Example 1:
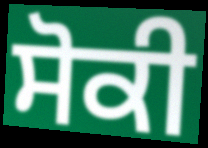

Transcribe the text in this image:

ਸੋਕੀ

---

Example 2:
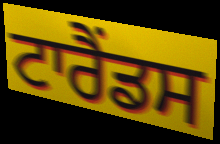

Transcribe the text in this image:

ਟਾਰੈਂਡਸ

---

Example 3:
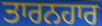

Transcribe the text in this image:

ਤਾਰਨਹਾਰ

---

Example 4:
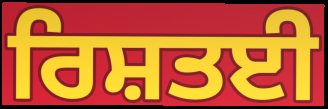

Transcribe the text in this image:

ਰਿਸ਼ਤਈ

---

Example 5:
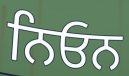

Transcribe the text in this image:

ਨਿਓਨ